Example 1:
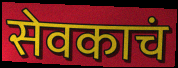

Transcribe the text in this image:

सेवकाचं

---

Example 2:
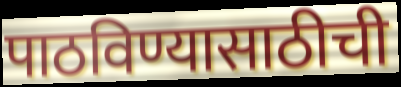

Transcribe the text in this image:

पाठविण्यासाठीची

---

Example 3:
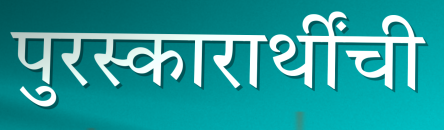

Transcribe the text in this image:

पुरस्कारार्थींची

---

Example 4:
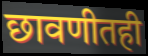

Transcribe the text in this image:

छावणीतही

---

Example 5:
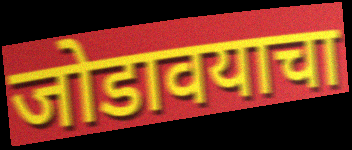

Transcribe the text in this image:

जोडावयाचा